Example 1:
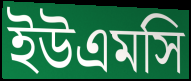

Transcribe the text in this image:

ইউএমসি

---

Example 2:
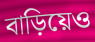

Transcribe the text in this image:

বাড়িয়েও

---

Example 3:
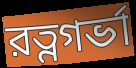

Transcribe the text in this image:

রত্নগর্ভা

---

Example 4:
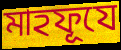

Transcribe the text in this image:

মাহফূযে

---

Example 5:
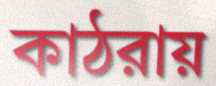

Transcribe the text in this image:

কাঠরায়